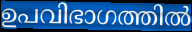
ഉപവിഭാഗത്തിൽ